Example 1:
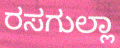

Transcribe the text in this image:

ರಸಗುಲ್ಲಾ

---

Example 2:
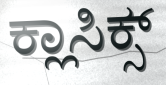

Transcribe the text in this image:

ಕ್ಲಾಸಿಕ್ಸ್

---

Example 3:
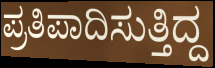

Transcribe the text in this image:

ಪ್ರತಿಪಾದಿಸುತ್ತಿದ್ದ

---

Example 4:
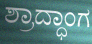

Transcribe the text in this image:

ಶ್ರಾದ್ಧಾಂಗ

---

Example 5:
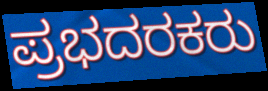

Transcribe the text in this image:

ಪ್ರಭದರಕರು